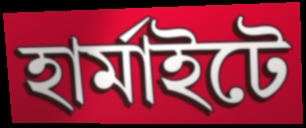
হাৰ্মাইটে